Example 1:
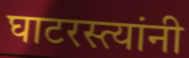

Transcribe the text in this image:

घाटरस्त्यांनी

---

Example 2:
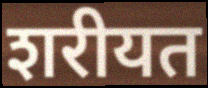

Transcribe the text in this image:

शरीयत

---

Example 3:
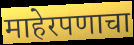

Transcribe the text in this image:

माहेरपणाचा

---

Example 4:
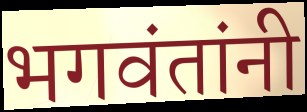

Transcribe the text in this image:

भगवंतांनी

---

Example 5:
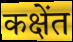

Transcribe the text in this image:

कक्षेंत